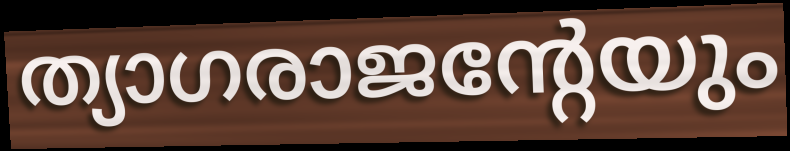
ത്യാഗരാജന്റേയും